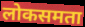
लोकसमता